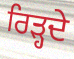
ਰਿੜ੍ਹਦੇ